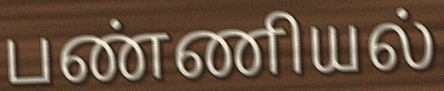
பண்ணியல்